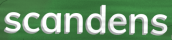
scandens